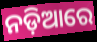
ନଡ଼ିଆରେ